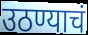
उठण्याचं